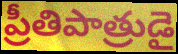
ప్రీతిపాత్రుడై